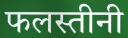
फलस्तीनी